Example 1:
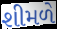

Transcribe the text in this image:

શીમળે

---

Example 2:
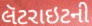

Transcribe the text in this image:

લૅટરાઇટની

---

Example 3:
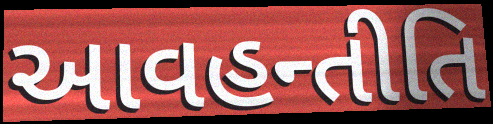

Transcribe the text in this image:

આવહન્તીતિ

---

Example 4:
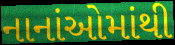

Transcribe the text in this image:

નાનાંઓમાંથી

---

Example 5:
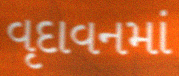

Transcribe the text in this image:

વૃદાવનમાં